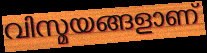
വിസ്മയങ്ങളാണ്